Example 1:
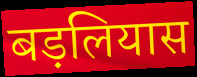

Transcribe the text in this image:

बड़लियास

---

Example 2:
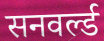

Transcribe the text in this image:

सनवर्ल्ड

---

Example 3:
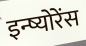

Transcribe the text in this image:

इन्ष्योरेंस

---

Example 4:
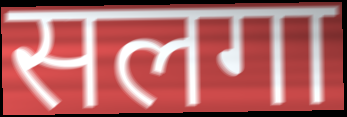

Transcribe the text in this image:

सलगा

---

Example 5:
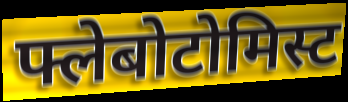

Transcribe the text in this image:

फ्लेबोटोमिस्ट